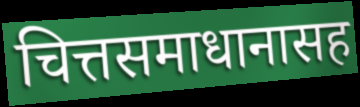
चित्तसमाधानासह